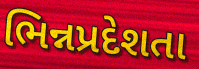
ભિન્નપ્રદેશતા